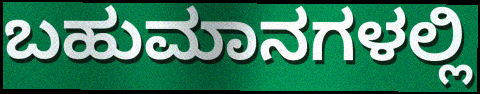
ಬಹುಮಾನಗಳಲ್ಲಿ